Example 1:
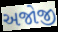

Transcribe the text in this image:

અજોજી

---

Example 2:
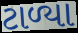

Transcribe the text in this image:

ટાળ્યા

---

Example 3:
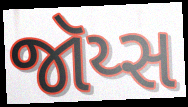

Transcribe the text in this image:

જૉય્સ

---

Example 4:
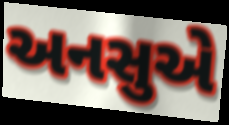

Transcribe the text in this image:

અનસુએ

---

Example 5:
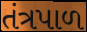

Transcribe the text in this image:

તંત્રપાળ